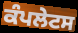
ਕੰਪਲੇਟਸ